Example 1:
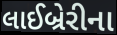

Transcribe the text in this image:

લાઈબ્રેરીના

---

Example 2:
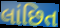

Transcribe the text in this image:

લાંછિત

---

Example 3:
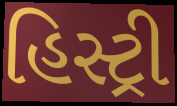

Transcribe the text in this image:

હિસ્ટ્રી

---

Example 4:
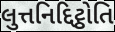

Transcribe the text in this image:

લુત્તનિદ્દિટ્ઠોતિ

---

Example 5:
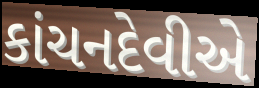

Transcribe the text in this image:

કાંચનદેવીએ